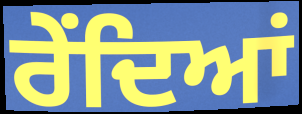
ਰੇਂਦਿਆਂ